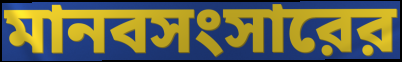
মানবসংসারের